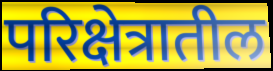
परिक्षेत्रातील